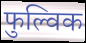
फुल्विक